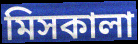
মিসকালা